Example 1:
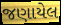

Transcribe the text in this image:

જણાયેલ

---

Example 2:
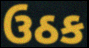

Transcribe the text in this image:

ઉઠક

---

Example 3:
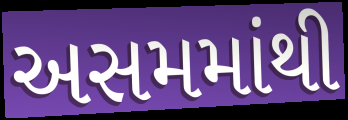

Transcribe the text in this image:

અસમમાંથી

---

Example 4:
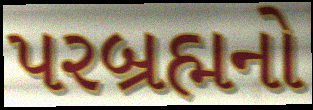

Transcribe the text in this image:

પરબ્રહ્મનો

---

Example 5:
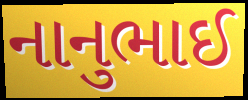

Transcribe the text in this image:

નાનુભાઈ